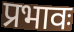
प्रभावः